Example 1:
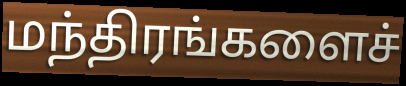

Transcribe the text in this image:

மந்திரங்களைச்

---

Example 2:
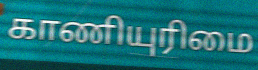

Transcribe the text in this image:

காணியுரிமை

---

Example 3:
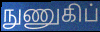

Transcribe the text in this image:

நுணுகிப்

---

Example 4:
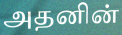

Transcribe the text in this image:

அதனின்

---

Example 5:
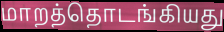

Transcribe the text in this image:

மாறத்தொடங்கியது